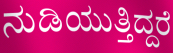
ನುಡಿಯುತ್ತಿದ್ದರೆ